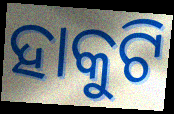
ହାକୁଟି